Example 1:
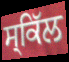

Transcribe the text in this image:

ਸ੍ਕਿੱਲ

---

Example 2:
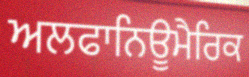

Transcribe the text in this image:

ਅਲਫਾਨਿਊਮੈਰਿਕ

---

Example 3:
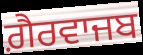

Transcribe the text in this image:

ਗ਼ੈਰਵਾਜਬ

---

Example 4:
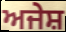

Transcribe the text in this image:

ਅਜੇਸ਼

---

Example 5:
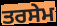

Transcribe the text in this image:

ਤਰਸੇਮ